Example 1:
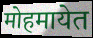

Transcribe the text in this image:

मोहमायेत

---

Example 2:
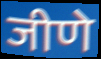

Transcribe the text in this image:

जीणे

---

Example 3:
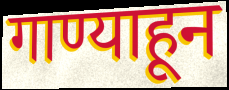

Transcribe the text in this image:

गाण्याहून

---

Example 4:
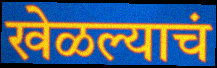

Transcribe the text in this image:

खेळल्याचं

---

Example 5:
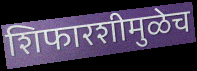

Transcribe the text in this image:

शिफारशीमुळेच